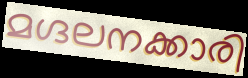
മഗ്ദലനക്കാരി